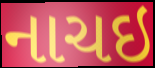
નાચઇ